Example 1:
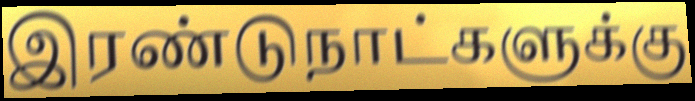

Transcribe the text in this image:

இரண்டுநாட்களுக்கு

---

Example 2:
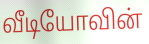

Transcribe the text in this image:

வீடியோவின்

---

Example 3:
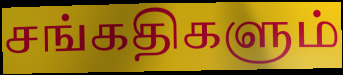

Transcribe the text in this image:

சங்கதிகளும்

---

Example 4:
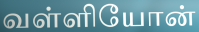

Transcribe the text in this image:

வள்ளியோன்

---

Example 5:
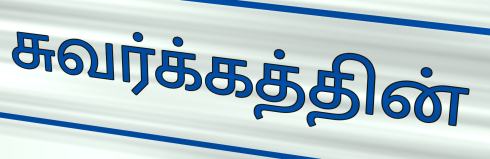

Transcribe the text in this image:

சுவர்க்கத்தின்